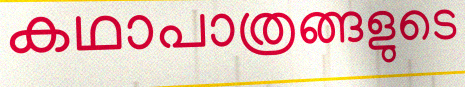
കഥാപാത്രങ്ങളുടെ